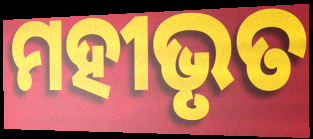
ମହୀଭୃତ